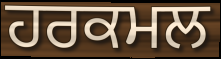
ਹਰਕਮਲ